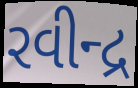
રવીન્દ્ર